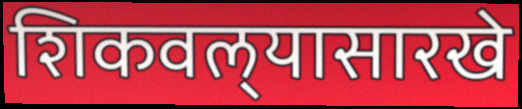
शिकवल्यासारखे